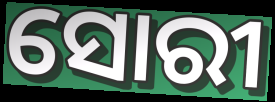
ସୋରୀ